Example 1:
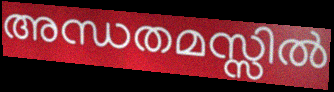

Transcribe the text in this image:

അന്ധതമസ്സിൽ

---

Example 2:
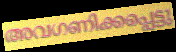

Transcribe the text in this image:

അവഗണിക്കപ്പെട്ടു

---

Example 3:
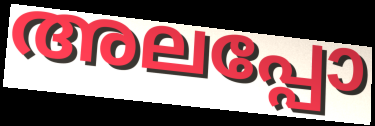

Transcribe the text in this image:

അലപ്പോ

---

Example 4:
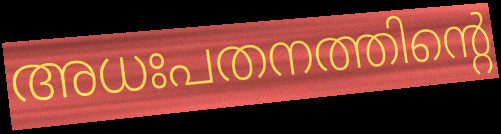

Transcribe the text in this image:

അധഃപതനത്തിന്റെ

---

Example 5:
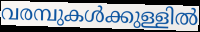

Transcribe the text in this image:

വരമ്പുകൾക്കുള്ളിൽ